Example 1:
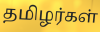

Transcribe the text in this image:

தமிழர்கள்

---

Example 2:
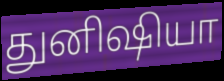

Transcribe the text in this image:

துனிஷியா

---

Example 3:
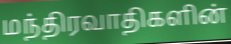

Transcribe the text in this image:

மந்திரவாதிகளின்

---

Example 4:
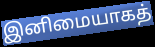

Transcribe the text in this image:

இனிமையாகத்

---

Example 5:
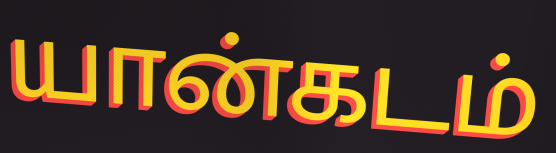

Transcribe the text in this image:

யான்கடம்